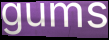
gums